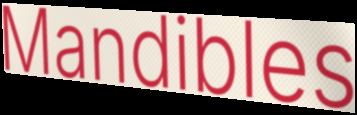
Mandibles